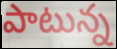
పాటున్న